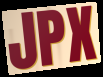
JPX